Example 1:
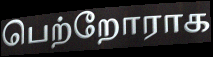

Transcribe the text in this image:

பெற்றோராக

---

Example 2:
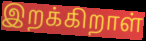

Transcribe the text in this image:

இறக்கிறாள்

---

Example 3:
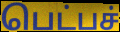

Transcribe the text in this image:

பெட்பச்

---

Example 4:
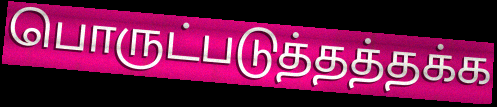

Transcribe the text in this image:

பொருட்படுத்தத்தக்க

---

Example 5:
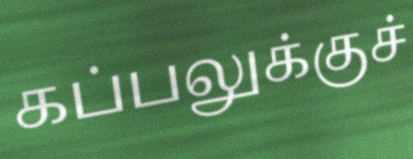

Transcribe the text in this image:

கப்பலுக்குச்